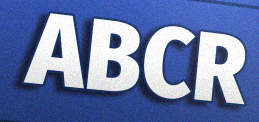
ABCR